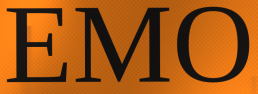
EMO